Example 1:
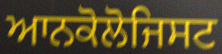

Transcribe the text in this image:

ਆਨਕੋਲੋਜਿਸਟ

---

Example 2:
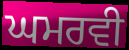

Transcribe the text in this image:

ਘਮਰਵੀ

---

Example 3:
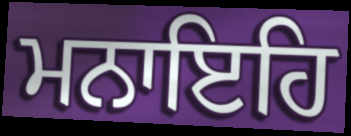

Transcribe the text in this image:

ਮਨਾਇਹਿ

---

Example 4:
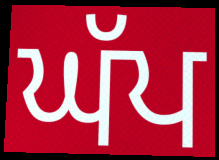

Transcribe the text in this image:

ਘੱਪ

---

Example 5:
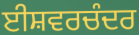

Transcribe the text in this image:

ਈਸ਼ਵਰਚੰਦਰ